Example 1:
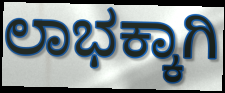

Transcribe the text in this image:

ಲಾಭಕ್ಕಾಗಿ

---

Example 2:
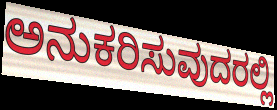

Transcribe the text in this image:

ಅನುಕರಿಸುವುದರಲ್ಲಿ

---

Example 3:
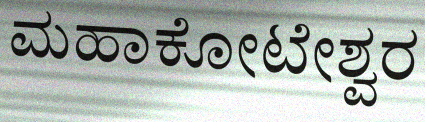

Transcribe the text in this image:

ಮಹಾಕೋಟೇಶ್ವರ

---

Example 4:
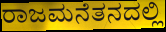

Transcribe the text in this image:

ರಾಜಮನೆತನದಲ್ಲಿ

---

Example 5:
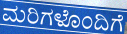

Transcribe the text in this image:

ಮರಿಗಳೊಂದಿಗೆ